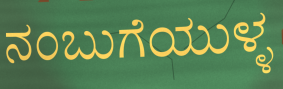
ನಂಬುಗೆಯುಳ್ಳ